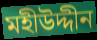
মহীউদ্দীন